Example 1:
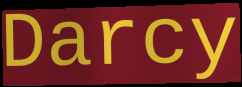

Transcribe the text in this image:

Darcy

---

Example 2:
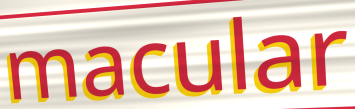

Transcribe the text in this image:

macular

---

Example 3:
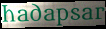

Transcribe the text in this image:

hadapsar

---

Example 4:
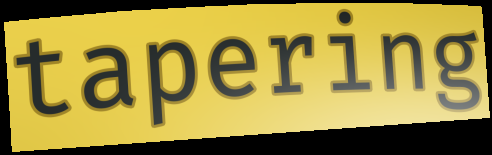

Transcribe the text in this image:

tapering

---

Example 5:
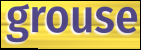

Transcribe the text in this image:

grouse